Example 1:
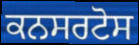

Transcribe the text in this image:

ਕਨਸਰਟੋਸ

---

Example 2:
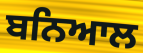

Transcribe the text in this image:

ਬਨਿਆਲ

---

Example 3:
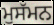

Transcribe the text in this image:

ਮੁਸੱਮਨ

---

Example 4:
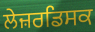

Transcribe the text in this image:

ਲੇਜ਼ਰਡਿਸਕ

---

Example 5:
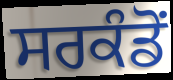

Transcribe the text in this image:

ਸਰਕੰਡੋਂ